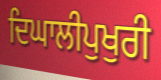
ਦਿਘਾਲੀਪੁਖੁਰੀ